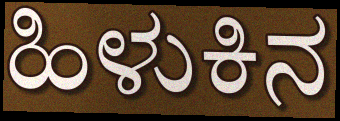
ಹಿಳುಕಿನ